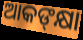
ଆକଙ୍‌କ୍ଷା